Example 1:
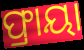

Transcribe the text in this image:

ଫ୍ରାୟା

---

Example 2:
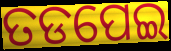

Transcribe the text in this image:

ତଡପେଇ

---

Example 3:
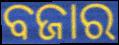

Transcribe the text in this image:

ବଜାର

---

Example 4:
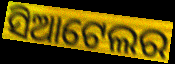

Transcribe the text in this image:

ସିଆଟେଲର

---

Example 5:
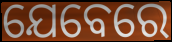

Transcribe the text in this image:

ଯେବେରେ